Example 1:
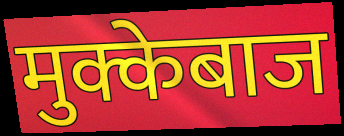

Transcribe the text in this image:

मुक्केबाज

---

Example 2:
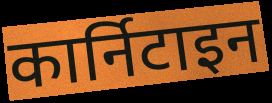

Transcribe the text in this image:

कार्निटाइन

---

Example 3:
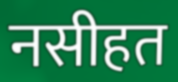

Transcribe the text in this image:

नसीहत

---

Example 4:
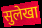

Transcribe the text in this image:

सुलेखा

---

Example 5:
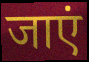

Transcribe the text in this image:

जाएं